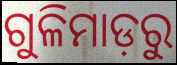
ଗୁଳିମାଡ଼ରୁ